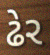
ઢેર